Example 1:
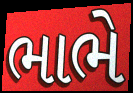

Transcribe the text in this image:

ભાભે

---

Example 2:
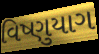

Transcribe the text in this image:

વિષ્ણુયાગ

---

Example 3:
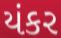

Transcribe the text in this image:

યંકર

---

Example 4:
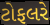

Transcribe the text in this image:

ટોફલરે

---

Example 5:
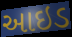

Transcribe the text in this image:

આઇડ